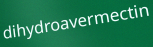
dihydroavermectin